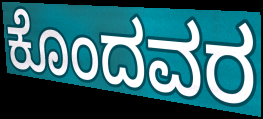
ಕೊಂದವರ